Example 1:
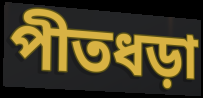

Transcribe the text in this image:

পীতধড়া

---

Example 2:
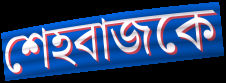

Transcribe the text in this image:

শেহবাজকে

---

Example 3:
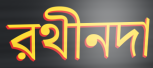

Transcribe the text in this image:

রথীনদা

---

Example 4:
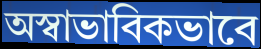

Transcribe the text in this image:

অস্বাভাবিকভাবে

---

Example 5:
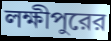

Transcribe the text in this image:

লক্ষীপুরের